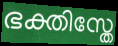
ഭക്തിസ്തേ